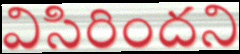
విసిరిందని